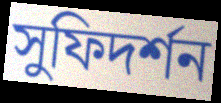
সুফিদর্শন